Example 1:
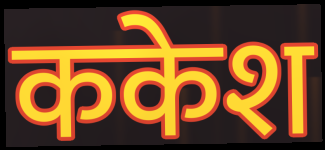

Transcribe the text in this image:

ककेश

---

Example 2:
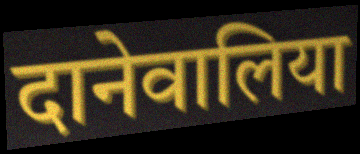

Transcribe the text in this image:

दानेवालिया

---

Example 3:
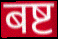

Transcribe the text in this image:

बष्ट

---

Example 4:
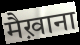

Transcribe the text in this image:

मैख़ाना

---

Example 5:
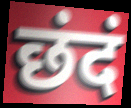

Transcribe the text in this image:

छंदं